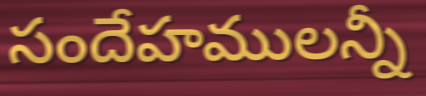
సందేహములన్నీ